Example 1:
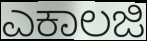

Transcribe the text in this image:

ಎಕಾಲಜಿ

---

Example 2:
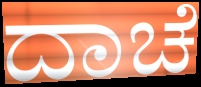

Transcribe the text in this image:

ದಾಚೆ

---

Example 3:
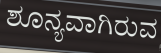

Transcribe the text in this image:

ಶೂನ್ಯವಾಗಿರುವ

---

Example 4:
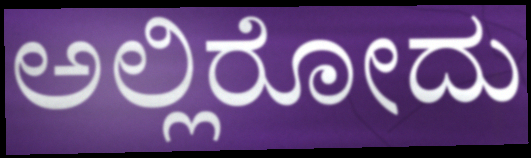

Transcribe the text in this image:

ಅಲ್ಲಿರೋದು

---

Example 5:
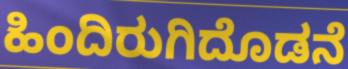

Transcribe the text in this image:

ಹಿಂದಿರುಗಿದೊಡನೆ